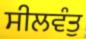
ਸੀਲਵੰਤੁ